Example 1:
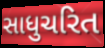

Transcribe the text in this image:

સાધુચરિત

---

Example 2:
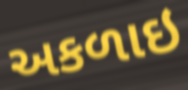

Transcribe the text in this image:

અકળાઇ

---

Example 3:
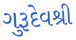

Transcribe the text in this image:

ગુરૂદેવશ્રી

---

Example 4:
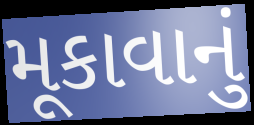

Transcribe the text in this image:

મૂકાવાનું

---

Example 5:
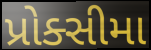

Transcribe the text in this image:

પ્રોક્સીમા